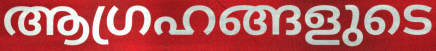
ആഗ്രഹങ്ങളുടെ